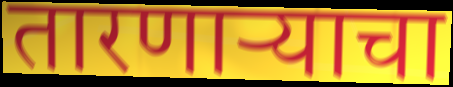
तारणाऱ्याचा